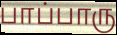
பாப்பாரு